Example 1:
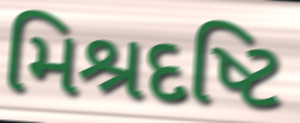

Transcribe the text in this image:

મિશ્રદષ્ટિ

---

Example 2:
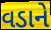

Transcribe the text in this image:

વડાને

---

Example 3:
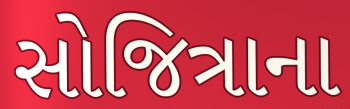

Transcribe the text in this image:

સોજિત્રાના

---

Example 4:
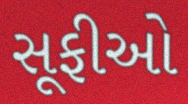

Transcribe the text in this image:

સૂફીઓ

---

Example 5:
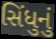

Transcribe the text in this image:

સિંધુનું